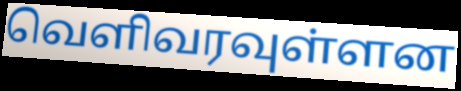
வெளிவரவுள்ளன